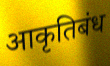
आकृतिबंध